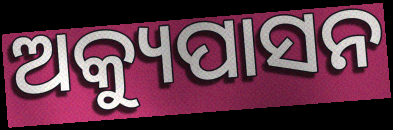
ଅକ୍ୟୁପାସନ